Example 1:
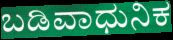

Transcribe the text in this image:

ಬಡಿವಾಧುನಿಕ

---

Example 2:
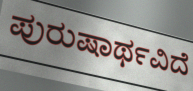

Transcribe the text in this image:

ಪುರುಷಾರ್ಥವಿದೆ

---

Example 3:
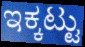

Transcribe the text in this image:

ಇಕ್ಕಟ್ಟು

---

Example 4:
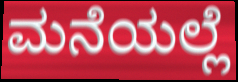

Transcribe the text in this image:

ಮನೆಯಲ್ಲೆ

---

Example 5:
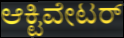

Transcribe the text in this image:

ಆಕ್ಟಿವೇಟರ್